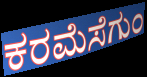
ಕರಮೆಸೆಗುಂ